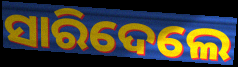
ସାରିଦେଲେ